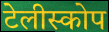
टेलीस्‍कोप